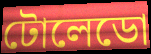
টোলেডো